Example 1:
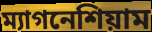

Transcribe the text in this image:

ম্যাগনেশিয়াম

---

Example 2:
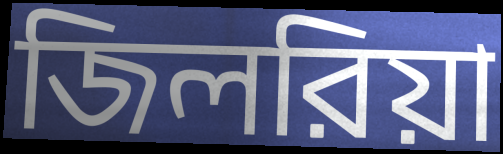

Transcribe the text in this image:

জিলরিয়া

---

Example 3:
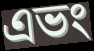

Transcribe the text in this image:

এভং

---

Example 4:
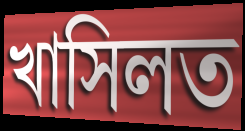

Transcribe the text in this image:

খাসিলত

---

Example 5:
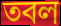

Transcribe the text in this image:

তবল